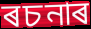
ৰচনাৰ